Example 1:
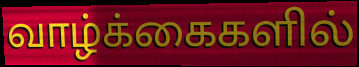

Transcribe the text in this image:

வாழ்க்கைகளில்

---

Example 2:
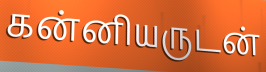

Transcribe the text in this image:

கன்னியருடன்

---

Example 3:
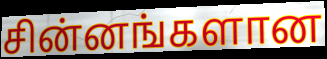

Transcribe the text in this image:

சின்னங்களான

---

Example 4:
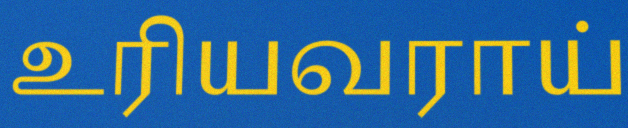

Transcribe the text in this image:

உரியவராய்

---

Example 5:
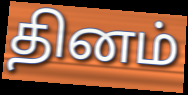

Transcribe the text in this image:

தினம்